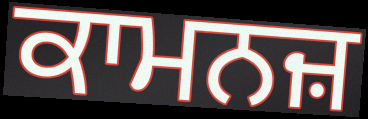
ਕਾਮਨਜ਼